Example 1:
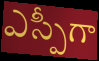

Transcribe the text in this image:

ఎస్పీగా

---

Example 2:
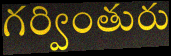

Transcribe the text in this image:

గర్వింతురు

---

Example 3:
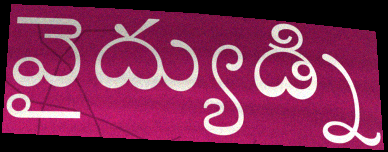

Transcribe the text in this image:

వైద్యుడ్ని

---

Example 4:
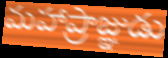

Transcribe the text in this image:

మహాప్రాజ్ఞుడు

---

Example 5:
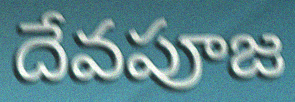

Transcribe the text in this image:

దేవపూజ